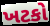
ખટકો